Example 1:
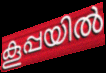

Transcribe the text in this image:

കൂപ്പയിൽ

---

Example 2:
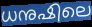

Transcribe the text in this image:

ധനുഷിലെ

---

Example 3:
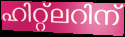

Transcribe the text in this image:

ഹിറ്റ്ലറിന്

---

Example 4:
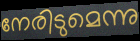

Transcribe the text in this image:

നേരിടുമെന്നു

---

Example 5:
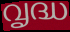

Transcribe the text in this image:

വൃദ്ധ